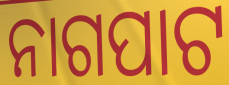
ନାଗପାଟ